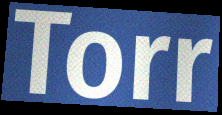
Torr